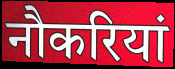
नौकरियां